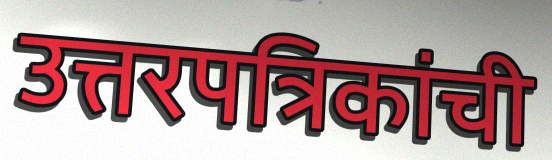
उत्तरपत्रिकांची